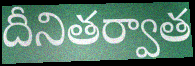
దీనితర్వాత